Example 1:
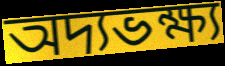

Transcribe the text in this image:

অদ্যভক্ষ্য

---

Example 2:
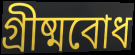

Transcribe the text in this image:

গ্রীষ্মবোধ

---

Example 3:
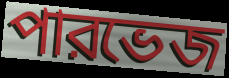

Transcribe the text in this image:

পারভেজ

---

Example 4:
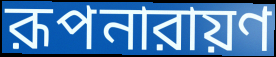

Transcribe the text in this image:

রূপনারায়ণ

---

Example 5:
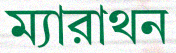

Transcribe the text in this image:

ম্যারাথন